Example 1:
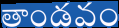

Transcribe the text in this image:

తాండవం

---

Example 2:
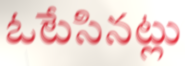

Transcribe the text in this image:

ఓటేసినట్లు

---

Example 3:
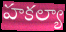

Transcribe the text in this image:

హకల్యా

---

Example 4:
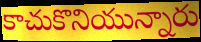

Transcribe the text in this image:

కాచుకొనియున్నారు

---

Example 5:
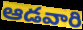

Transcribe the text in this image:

ఆడవారి